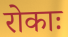
रोकाः